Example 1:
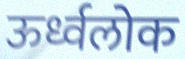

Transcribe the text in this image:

ऊर्ध्वलोक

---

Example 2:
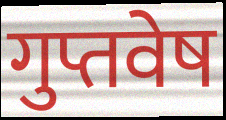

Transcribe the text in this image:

गुप्तवेष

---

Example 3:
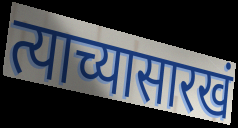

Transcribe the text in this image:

त्याच्यासारखं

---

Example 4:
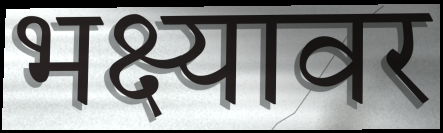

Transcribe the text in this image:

भक्ष्यावर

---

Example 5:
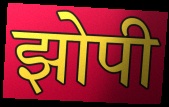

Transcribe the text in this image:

झोपी